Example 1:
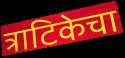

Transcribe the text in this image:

त्राटिकेचा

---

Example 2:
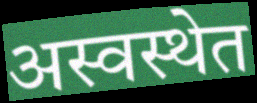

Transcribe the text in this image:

अस्वस्थेत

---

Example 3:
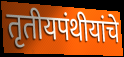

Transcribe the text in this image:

तृतीयपंथीयांचे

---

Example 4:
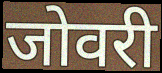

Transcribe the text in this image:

जोवरी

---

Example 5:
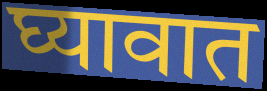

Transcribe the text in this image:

घ्यावात